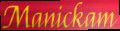
Manickam